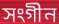
সংগীন